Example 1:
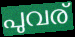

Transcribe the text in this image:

പുവര്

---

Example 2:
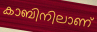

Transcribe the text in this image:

കാബിനിലാണ്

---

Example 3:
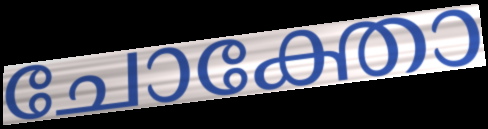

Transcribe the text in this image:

ചോക്തോ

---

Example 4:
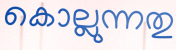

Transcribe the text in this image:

കൊല്ലുന്നതു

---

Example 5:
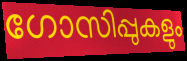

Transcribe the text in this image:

ഗോസിപ്പുകളും